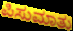
ಪಿಸುಮಾತು